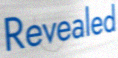
Revealed